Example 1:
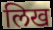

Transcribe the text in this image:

लिख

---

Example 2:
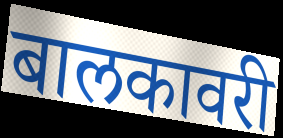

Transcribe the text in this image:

बालकावरी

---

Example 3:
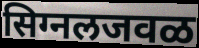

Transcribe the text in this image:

सिग्नलजवळ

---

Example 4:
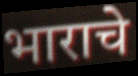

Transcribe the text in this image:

भाराचे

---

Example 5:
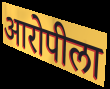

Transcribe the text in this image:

आरोपीला